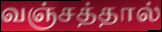
வஞ்சத்தால்